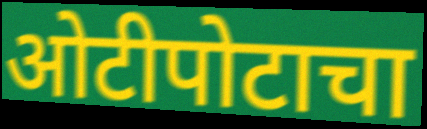
ओटीपोटाचा